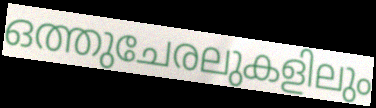
ഒത്തുചേരലുകളിലും